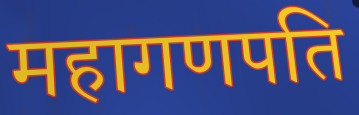
महागणपति